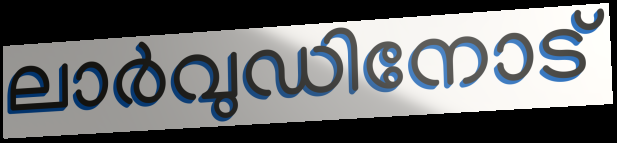
ലാർവുഡിനോട്